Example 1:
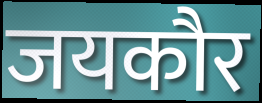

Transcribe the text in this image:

जयकौर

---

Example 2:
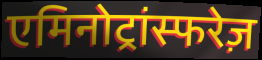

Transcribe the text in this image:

एमिनोट्रांस्फरेज़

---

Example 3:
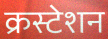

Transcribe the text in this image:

क्रस्टेशन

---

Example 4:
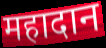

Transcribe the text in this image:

महादान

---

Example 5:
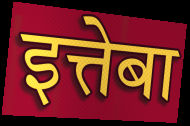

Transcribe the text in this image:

इत्तेबा